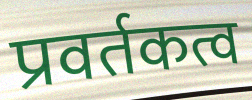
प्रवर्तकत्व